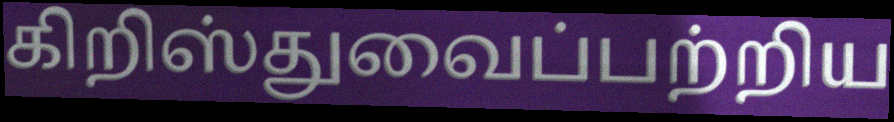
கிறிஸ்துவைப்பற்றிய